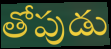
తోపుడు